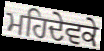
ਮਹਿਦੇਵਕੇ